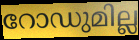
റോഡുമില്ല